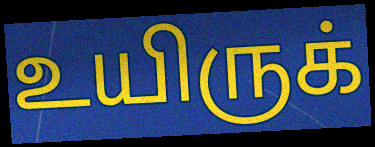
உயிருக்